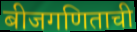
बीजगणिताची